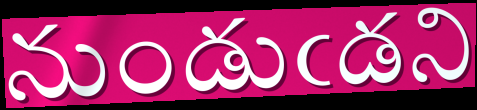
నుండుఁడని